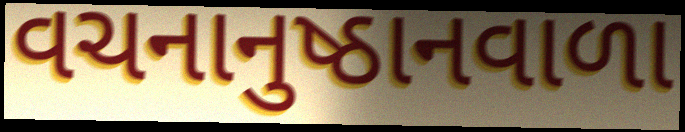
વચનાનુષ્ઠાનવાળા